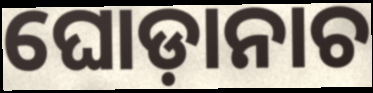
ଘୋଡ଼ାନାଚ